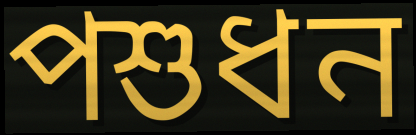
পশুধন